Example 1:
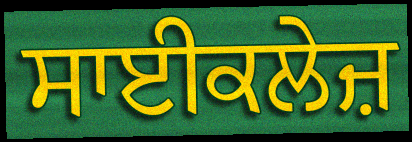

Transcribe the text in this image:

ਸਾਈਕਲੇਜ਼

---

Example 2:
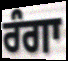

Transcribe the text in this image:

ਰੰਗਾ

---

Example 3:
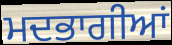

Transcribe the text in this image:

ਮਦਭਾਗੀਆਂ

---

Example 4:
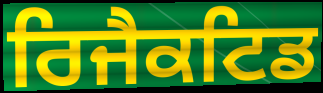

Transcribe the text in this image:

ਰਿਜੈਕਟਿਡ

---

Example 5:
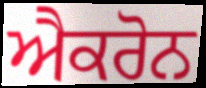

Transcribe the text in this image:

ਐਕਰੋਨ